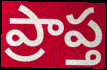
ప్రాప్త